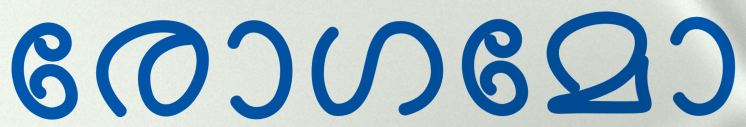
രോഗമോ